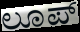
ಲೂಪ್